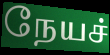
நேயச்